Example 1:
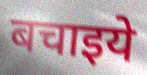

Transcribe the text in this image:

बचाइये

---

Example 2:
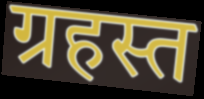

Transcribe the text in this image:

ग्रहस्त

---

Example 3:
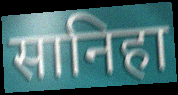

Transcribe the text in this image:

सानिहा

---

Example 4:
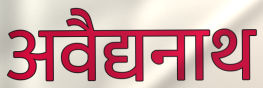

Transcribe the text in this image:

अवैद्यनाथ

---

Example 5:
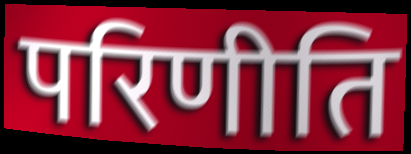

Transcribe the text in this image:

परिणीति